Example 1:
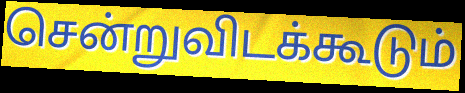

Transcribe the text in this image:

சென்றுவிடக்கூடும்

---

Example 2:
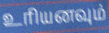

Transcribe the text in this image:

உரியனவும்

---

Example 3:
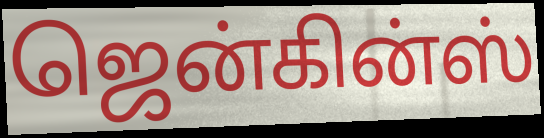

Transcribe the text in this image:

ஜென்கின்ஸ்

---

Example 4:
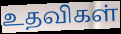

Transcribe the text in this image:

உதவிகள்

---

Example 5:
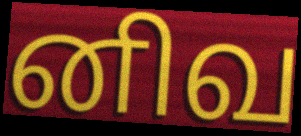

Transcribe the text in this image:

னிவ